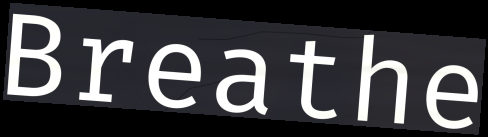
Breathe